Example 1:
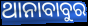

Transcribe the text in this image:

ଥାନାବାବୁର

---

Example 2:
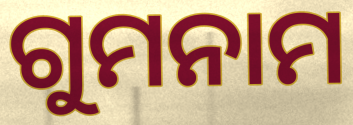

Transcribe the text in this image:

ଗୁମନାମ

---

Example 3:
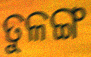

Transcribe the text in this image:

ତୁଳଙ୍ଗ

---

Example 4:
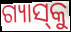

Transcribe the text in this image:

ଗ୍ୟାସ୍‌କୁ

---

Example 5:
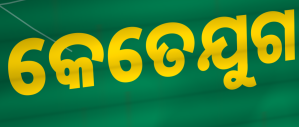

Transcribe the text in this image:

କେତେଯୁଗ